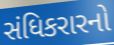
સંધિકરારનો